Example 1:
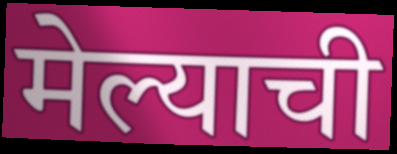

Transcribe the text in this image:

मेल्याची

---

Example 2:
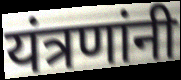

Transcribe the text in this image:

यंत्रणांनी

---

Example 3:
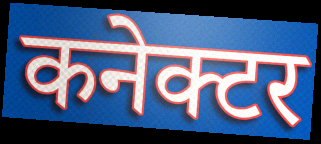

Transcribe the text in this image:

कनेक्टर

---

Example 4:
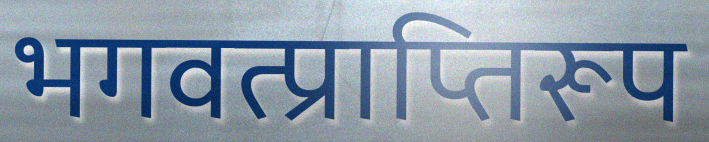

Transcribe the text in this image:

भगवत्प्राप्तिरूप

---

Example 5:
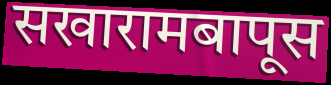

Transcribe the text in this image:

सखारामबापूस